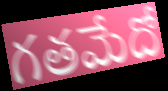
గతమేదో